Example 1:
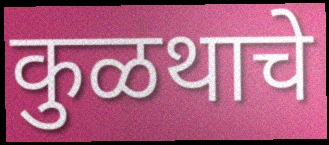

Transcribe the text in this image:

कुळथाचे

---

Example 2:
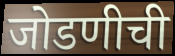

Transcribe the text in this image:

जोडणीची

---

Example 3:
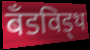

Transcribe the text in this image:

बँडविड्थ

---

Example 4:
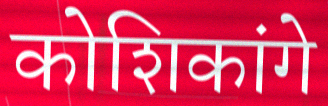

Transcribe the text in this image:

कोशिकांगे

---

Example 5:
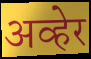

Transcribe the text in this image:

अव्हेर